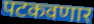
पटकवणार